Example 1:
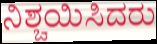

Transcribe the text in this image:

ನಿಶ್ಚಯಿಸಿದರು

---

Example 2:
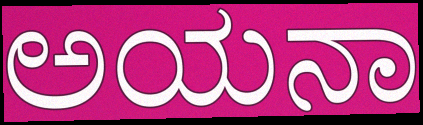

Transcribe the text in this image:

ಅಯನಾ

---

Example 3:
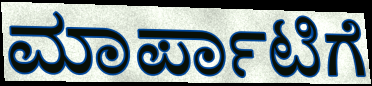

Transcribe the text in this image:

ಮಾರ್ಪಾಟಿಗೆ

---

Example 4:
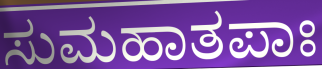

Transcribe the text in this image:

ಸುಮಹಾತಪಾಃ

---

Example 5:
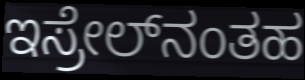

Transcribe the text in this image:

ಇಸ್ರೇಲ್‌ನಂತಹ